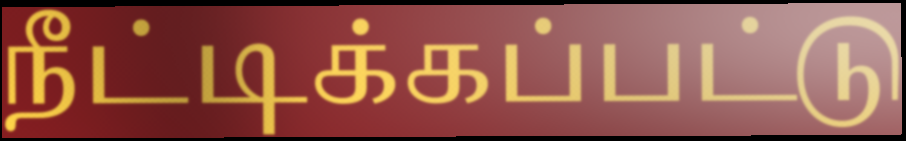
நீட்டிக்கப்பட்டு